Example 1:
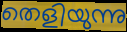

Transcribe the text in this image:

തെളിയുന്നു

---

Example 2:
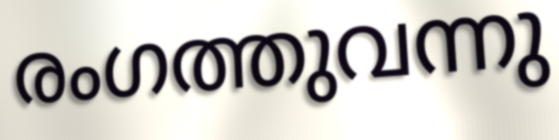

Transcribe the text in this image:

രംഗത്തുവന്നു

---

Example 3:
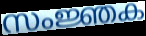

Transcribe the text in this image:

സംജ്ഞക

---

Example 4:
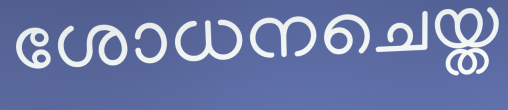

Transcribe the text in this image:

ശോധനചെയ്ത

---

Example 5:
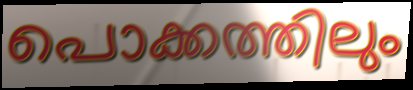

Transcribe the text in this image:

പൊക്കത്തിലും